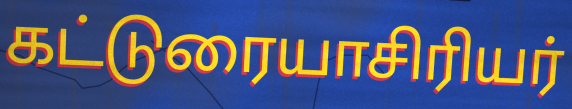
கட்டுரையாசிரியர்